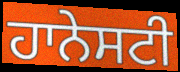
ਹਾਨੇਸਟੀ